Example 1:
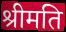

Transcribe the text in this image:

श्रीमति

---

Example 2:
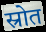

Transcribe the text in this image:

स्रोत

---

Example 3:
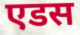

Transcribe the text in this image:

एडस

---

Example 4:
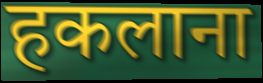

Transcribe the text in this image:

हकलाना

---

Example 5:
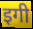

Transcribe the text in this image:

इगी